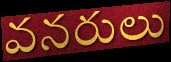
వనరులు